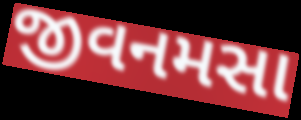
જીવનમસા